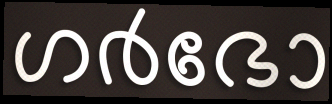
ഗർഭോ